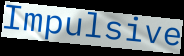
Impulsive